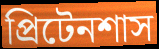
প্রিটেনশাস